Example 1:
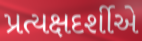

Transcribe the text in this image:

પ્રત્યક્ષદર્શીએ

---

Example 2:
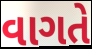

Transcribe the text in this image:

વાગતે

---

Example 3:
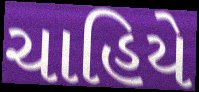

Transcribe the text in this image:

ચાહિયે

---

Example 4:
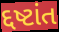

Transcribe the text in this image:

દ્દષ્ટાંત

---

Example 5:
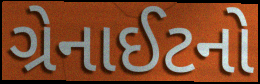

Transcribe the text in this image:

ગ્રેનાઈટનો